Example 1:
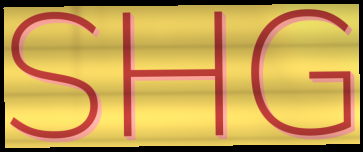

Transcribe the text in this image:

SHG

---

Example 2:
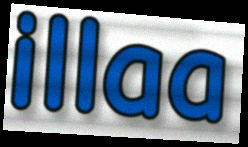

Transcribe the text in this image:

illaa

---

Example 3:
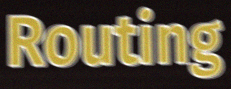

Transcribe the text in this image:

Routing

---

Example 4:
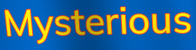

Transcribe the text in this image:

Mysterious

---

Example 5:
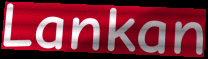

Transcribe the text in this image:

Lankan